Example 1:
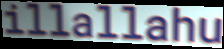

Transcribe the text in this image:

illallahu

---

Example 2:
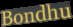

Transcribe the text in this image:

Bondhu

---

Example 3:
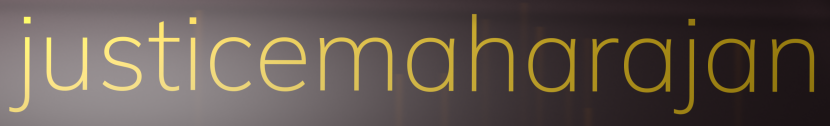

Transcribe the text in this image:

justicemaharajan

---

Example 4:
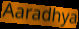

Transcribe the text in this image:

Aaradhya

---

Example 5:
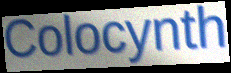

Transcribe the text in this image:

Colocynth